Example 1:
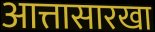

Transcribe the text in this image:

आत्तासारखा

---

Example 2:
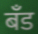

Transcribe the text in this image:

बॅंड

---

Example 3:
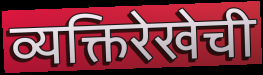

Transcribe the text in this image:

व्यक्तिरेखेची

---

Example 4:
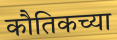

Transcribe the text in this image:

कौतिकच्या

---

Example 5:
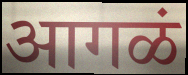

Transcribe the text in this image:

आगळं